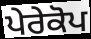
ਪੇਰੇਕੋਪ